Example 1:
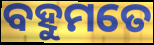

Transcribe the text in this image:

ବହୁମତେ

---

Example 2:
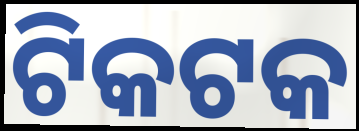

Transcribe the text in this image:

ଟିକଟକ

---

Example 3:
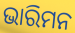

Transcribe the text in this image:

ଭାରିମନ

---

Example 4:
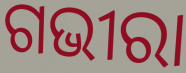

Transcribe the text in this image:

ଗଭୀରା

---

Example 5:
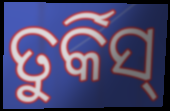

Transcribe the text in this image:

ତୁର୍କିସ୍